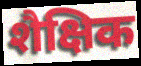
शैक्षिक